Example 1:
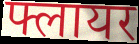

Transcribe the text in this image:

फ्लायर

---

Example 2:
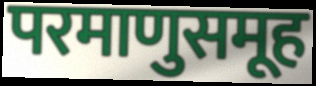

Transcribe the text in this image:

परमाणुसमूह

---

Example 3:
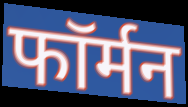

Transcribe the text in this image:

फॉर्मन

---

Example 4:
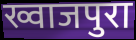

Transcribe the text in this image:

ख्वाजपुरा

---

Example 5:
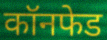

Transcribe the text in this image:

कॉनफेड